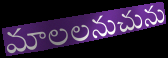
మాలలనుచును